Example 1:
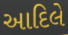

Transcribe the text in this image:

આદિલે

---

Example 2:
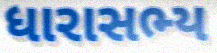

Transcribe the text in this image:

ધારાસભ્ય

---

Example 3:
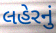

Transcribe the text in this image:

લહેરનું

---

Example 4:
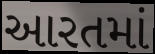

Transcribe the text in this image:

આરતમાં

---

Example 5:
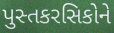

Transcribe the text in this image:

પુસ્તકરસિકોને